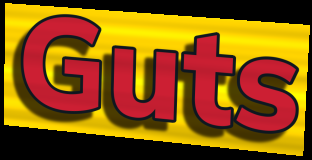
Guts